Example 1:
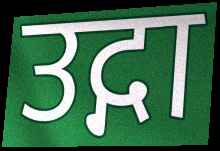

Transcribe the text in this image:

उद्गा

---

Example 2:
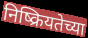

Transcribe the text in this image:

निष्क्रियतेच्या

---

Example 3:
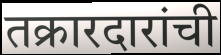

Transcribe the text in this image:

तक्रारदारांची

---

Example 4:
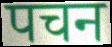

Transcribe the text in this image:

पचन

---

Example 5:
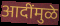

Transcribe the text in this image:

आदींमुळे